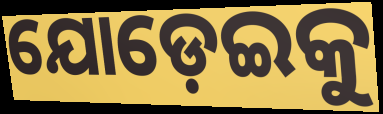
ଯୋଡ଼େଇକୁ